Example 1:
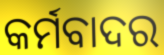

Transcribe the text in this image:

କର୍ମବାଦର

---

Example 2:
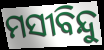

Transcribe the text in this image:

ମସୀବିନ୍ଦୁ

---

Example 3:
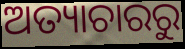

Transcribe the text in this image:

ଅତ୍ୟାଚାରରୁ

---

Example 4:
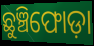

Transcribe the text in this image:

ଛୁଞ୍ଚିଫୋଡ଼ା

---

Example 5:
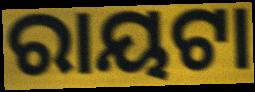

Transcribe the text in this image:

ରାୟଟା